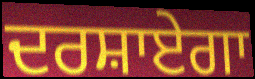
ਦਰਸ਼ਾਏਗਾ